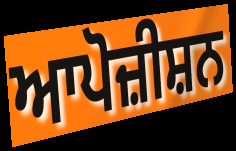
ਆਪੋਜ਼ੀਸ਼ਨ